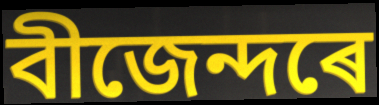
বীজেন্দৰে